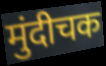
मुंदीचक